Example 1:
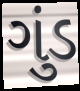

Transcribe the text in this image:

ગુંડ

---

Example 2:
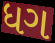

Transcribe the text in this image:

ધગ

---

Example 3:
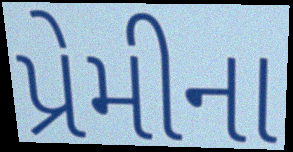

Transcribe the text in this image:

પ્રેમીના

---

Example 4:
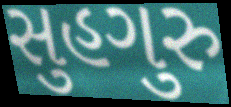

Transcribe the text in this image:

સુહગુરુ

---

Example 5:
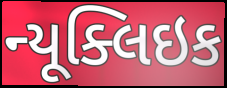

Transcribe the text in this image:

ન્યૂક્લિઇક